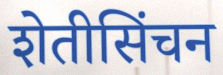
शेतीसिंचन